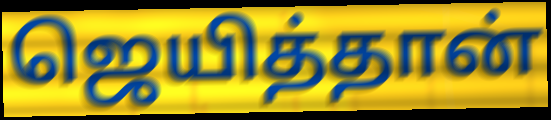
ஜெயித்தான்